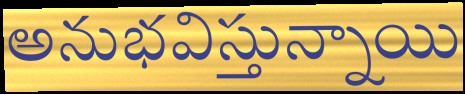
అనుభవిస్తున్నాయి